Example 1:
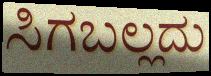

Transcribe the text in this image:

ಸಿಗಬಲ್ಲದು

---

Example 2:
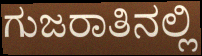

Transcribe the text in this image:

ಗುಜರಾತಿನಲ್ಲಿ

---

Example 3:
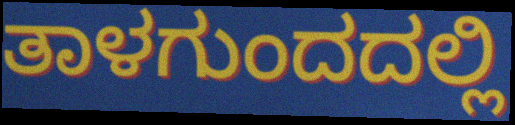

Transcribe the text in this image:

ತಾಳಗುಂದದಲ್ಲಿ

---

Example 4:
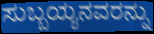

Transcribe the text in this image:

ಸುಬ್ಬಯ್ಯನವರನ್ನು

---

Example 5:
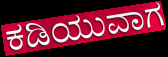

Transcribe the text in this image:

ಕಡಿಯುವಾಗ